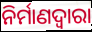
ନିର୍ମାଣଦ୍ୱାରା